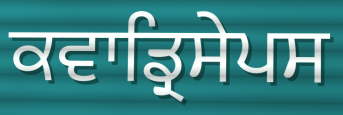
ਕਵਾਡ੍ਰਿਸੇਪਸ